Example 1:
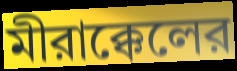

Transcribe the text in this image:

মীরাক্কেলের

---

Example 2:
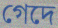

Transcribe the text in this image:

গেদে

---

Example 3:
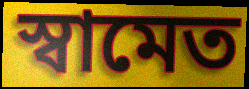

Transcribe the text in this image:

স্বামেত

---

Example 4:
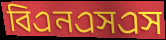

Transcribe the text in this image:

বিএনএসএস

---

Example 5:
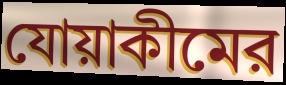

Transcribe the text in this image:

যোয়াকীমের